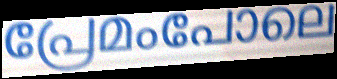
പ്രേമംപോലെ